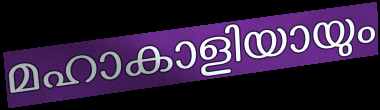
മഹാകാളിയായും